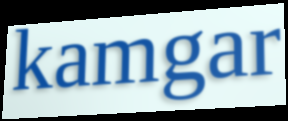
kamgar